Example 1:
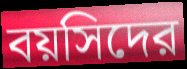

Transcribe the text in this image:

বয়সিদের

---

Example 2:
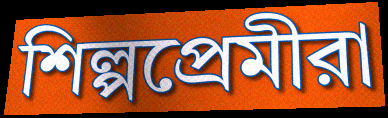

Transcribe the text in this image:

শিল্পপ্রেমীরা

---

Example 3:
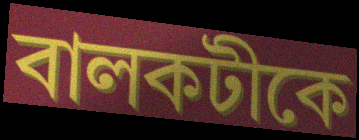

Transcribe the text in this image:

বালকটীকে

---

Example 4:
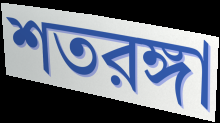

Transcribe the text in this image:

শতরঙ্গা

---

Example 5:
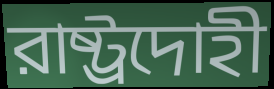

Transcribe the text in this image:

রাষ্ট্রদোহী